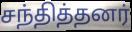
சந்தித்தனர்